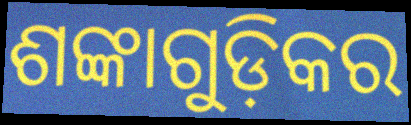
ଶଙ୍କାଗୁଡ଼ିକର